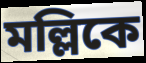
মল্লিকে